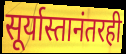
सूर्यास्तानंतरही